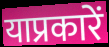
याप्रकारें